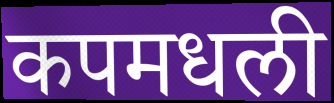
कपमधली